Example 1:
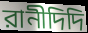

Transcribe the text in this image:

রানীদিদি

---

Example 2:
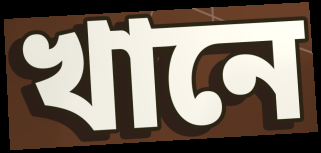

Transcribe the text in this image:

খানে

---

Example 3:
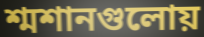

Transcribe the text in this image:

শ্মশানগুলোয়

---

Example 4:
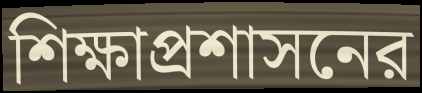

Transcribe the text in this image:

শিক্ষাপ্রশাসনের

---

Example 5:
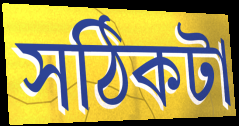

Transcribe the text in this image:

সঠিকটা